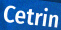
Cetrin